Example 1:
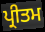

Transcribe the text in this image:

ਪ੍ਰੀਤਮ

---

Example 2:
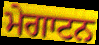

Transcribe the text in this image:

ਮੇਗਾਟਨ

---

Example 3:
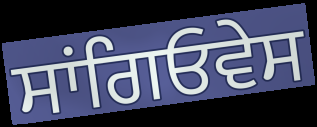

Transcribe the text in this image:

ਸਾਂਗਿਓਵੇਸ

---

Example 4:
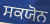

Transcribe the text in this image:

ਸਕਯੋਨ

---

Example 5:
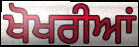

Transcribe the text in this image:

ਖੋਖਰੀਆਂ